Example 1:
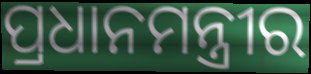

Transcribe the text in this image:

ପ୍ରଧାନମନ୍ତ୍ରୀର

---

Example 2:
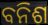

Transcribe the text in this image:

ବନିଶ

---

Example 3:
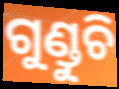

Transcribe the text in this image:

ଗୁଣ୍ଡୁଚି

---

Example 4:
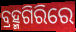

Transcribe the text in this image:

ବ୍ରହ୍ମଗିରିରେ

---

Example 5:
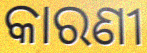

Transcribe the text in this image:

କାରଣୀ